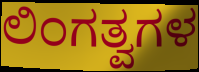
ಲಿಂಗತ್ವಗಳ